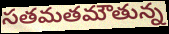
సతమతమౌతున్న